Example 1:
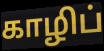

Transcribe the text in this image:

காழிப்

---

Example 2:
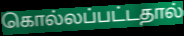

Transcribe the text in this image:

கொல்லப்பட்டதால்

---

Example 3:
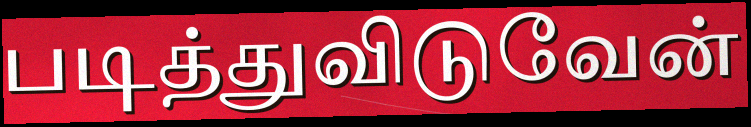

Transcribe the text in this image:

படித்துவிடுவேன்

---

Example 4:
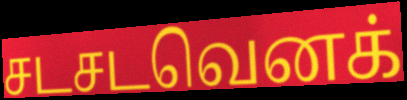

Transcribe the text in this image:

சடசடவெனக்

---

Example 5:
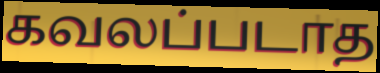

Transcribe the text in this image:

கவலப்படாத